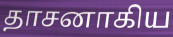
தாசனாகிய